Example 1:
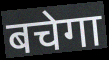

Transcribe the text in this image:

बचेगा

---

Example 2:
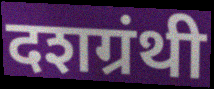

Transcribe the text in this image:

दशग्रंथी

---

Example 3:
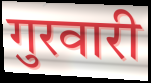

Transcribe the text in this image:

गुरवारी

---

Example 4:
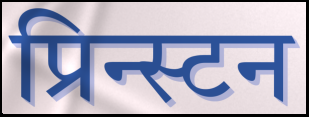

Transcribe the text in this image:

प्रिन्स्टन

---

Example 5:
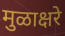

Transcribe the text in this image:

मुळाक्षरे